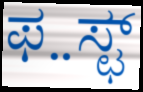
ಫ಼ಸ್ಟ್